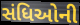
સંધિઓની